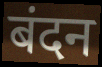
बंदन